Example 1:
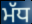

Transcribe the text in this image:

ਮੱਧ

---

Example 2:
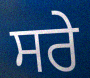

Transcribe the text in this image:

ਸਰੇ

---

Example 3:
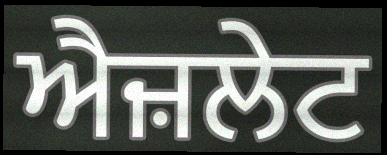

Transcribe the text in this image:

ਐਜ਼ਲੇਟ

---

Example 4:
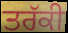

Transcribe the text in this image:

ਤਰੱਕੀ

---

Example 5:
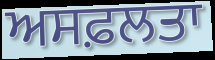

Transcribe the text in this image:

ਅਸਫ਼ਲਤਾ